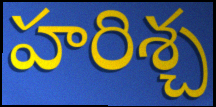
హరిశ్చ